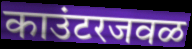
काउंटरजवळ